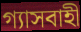
গ্যাসবাহী